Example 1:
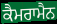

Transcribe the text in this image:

ਕੈਮਰਾਮੈਨ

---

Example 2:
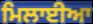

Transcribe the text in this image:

ਮਿਲਾਈਆ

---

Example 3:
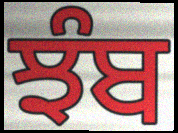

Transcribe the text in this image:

ਝੰਬ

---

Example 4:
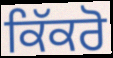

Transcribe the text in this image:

ਕਿੱਕਰੋ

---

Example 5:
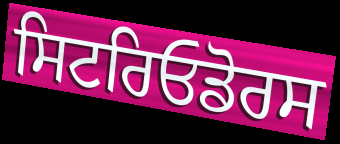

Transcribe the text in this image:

ਸਿਟਰਿਓਡੋਰਸ